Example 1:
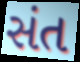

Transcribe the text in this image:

સંત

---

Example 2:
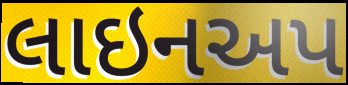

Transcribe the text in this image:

લાઇનઅપ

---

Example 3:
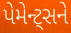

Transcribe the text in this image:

પેમેન્ટ્સને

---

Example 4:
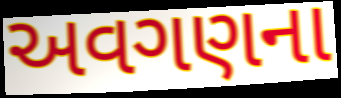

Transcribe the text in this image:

અવગણના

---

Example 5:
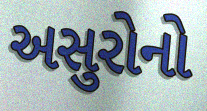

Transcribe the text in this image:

અસુરોનો